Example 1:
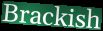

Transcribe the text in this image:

Brackish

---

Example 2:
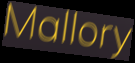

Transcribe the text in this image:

Mallory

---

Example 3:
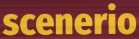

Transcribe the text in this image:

scenerio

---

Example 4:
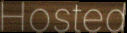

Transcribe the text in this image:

Hosted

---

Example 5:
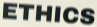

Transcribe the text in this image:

ETHICS